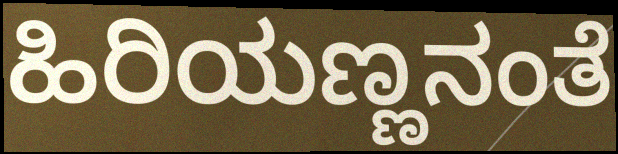
ಹಿರಿಯಣ್ಣನಂತೆ